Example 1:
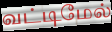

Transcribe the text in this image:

வட்டிமேல்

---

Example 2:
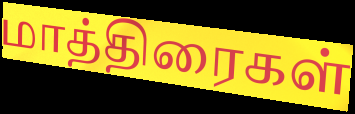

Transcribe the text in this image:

மாத்திரைகள்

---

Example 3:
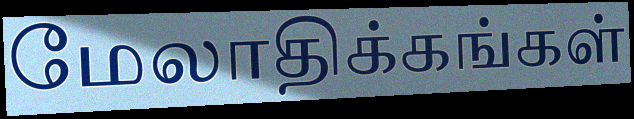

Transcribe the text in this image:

மேலாதிக்கங்கள்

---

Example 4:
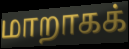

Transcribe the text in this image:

மாறாகக்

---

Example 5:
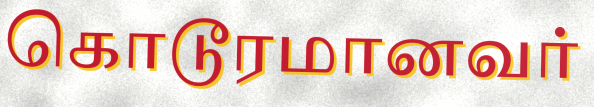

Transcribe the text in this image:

கொடூரமானவர்